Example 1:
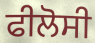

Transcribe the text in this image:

ਫੀਲੋਸੀ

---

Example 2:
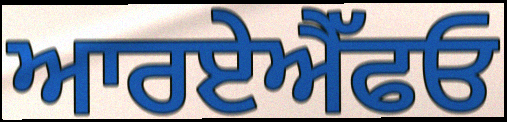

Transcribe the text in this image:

ਆਰਏਐੱਫਓ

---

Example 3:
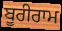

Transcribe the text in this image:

ਬੂਰੀਰਾਮ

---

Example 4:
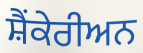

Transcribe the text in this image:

ਸ਼ੈਂਕੇਰੀਅਨ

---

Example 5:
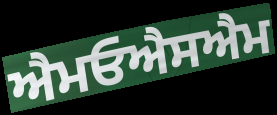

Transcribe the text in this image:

ਐਮਓਐਸਐਮ